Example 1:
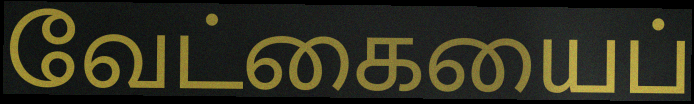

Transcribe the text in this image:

வேட்கையைப்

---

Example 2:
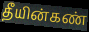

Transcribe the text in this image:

தீயின்கண்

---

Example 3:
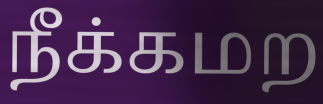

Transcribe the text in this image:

நீக்கமற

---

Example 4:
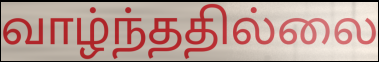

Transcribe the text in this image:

வாழ்ந்ததில்லை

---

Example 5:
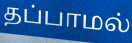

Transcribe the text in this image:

தப்பாமல்